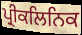
ਪ੍ਰੀਕਲਿਨਿਕ